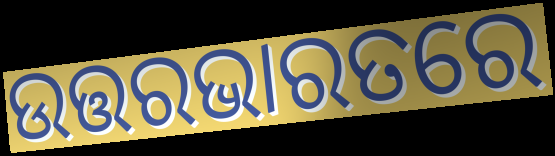
ଉତ୍ତରଭାରତରେ